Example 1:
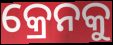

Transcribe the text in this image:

କ୍ରେନକୁ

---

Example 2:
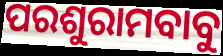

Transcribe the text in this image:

ପରଶୁରାମବାବୁ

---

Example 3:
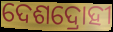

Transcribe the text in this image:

ଦେଶଦ୍ରୋହୀ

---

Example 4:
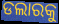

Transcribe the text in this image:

ଡଲାରକୁ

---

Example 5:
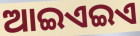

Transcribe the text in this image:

ଆଇଏଇଏ